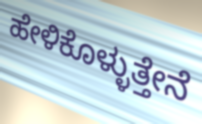
ಹೇಳಿಕೊಳ್ಳುತ್ತೇನೆ